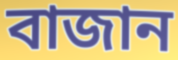
বাজান